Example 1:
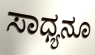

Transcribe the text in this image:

ಸಾಧ್ಯನೂ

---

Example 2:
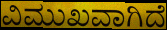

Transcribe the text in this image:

ವಿಮುಖವಾಗಿದೆ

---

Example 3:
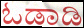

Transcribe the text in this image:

ಓಡಾಡಿ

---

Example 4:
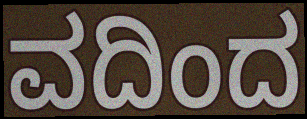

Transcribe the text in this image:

ವದಿಂದ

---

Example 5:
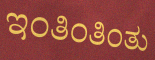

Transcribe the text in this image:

ಇಂತಿಂತಿಂತು